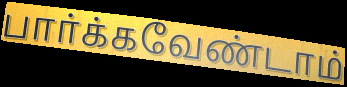
பார்க்கவேண்டாம்